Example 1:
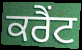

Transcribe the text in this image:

ਕਰੈਂਟ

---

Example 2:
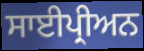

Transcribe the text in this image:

ਸਾਈਪ੍ਰੀਅਨ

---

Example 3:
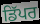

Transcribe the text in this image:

ਡਿੱਪਰ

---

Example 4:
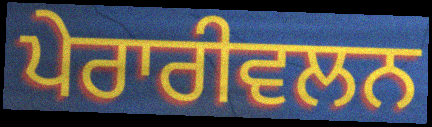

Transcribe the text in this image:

ਪੇਰਾਰੀਵਲਨ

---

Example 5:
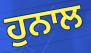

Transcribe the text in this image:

ਹੁਨਾਲ